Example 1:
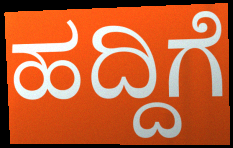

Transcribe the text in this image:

ಹದ್ದಿಗೆ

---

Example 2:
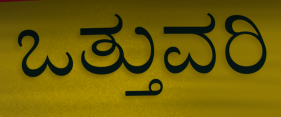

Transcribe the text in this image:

ಒತ್ತುವರಿ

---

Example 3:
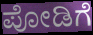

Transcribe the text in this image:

ಪೋಡಿಗೆ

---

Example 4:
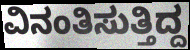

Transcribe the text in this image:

ವಿನಂತಿಸುತ್ತಿದ್ದ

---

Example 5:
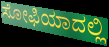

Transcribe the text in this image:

ಸೋಫಿಯಾದಲ್ಲಿ